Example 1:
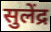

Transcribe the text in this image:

सुलेंद्र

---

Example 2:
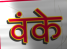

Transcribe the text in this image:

वंके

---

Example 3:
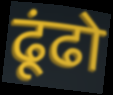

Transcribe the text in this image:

ढूंढो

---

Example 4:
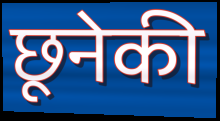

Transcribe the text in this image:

छूनेकी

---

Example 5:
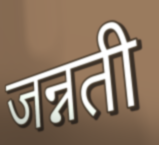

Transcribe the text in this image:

जन्नती